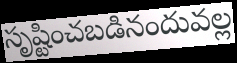
సృష్టించబడినందువల్ల